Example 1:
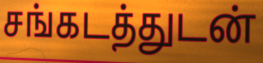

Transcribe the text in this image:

சங்கடத்துடன்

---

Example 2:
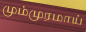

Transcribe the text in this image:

மும்முரமாய்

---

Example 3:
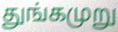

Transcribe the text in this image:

துங்கமுறு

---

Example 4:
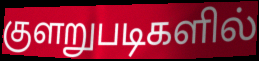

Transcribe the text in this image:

குளறுபடிகளில்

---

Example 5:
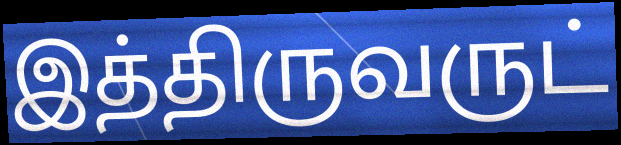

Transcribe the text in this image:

இத்திருவருட்